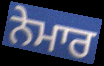
ਨੇਮਾਰ